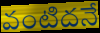
వంటిదనే